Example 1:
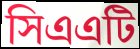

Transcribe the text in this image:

সিএএটি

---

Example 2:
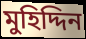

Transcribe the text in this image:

মুহিদ্দিন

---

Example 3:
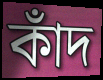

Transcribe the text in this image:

কাঁদ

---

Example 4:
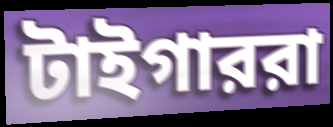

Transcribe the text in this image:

টাইগাররা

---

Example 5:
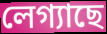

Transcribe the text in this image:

লেগ্যাছে